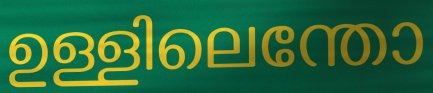
ഉള്ളിലെന്തോ